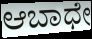
ಆಬಾಧೇ